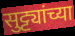
सुट्ट्यांच्या